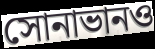
সোনাভানও